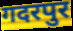
गदरपुर